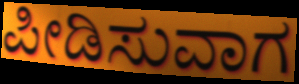
ಪೀಡಿಸುವಾಗ